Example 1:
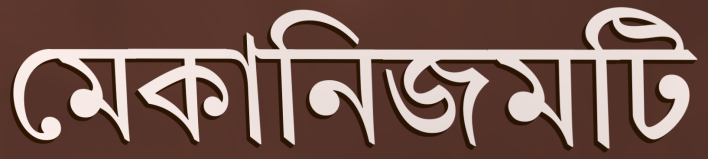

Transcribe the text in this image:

মেকানিজমটি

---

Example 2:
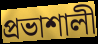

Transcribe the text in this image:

প্রভাশালী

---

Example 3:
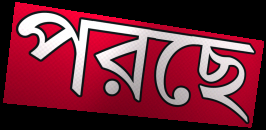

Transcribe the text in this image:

পরছে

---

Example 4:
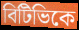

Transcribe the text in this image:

বিটিভিকে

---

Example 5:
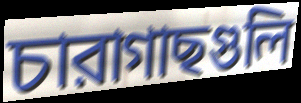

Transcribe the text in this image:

চারাগাছগুলি